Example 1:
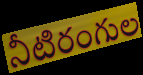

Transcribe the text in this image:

నీటిరంగుల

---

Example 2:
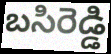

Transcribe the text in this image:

బసిరెడ్డి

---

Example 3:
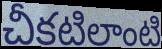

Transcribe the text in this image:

చీకటిలాంటి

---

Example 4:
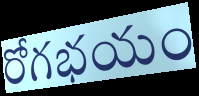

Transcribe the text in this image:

రోగభయం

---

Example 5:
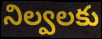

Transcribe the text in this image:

నిల్వలకు